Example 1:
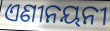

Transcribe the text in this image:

ଏଣୀନୟନୀ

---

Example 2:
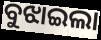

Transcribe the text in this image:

ବୁଝାଇଲା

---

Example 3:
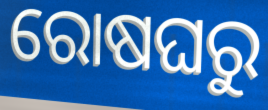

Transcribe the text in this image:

ରୋଷଘରୁ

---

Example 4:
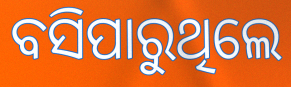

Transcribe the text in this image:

ବସିପାରୁଥିଲେ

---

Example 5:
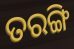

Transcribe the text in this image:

ତରଙ୍ଗି